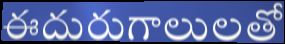
ఈదురుగాలులతో